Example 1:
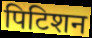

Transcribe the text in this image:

पिटिशन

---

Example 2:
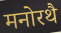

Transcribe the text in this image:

मनोरथै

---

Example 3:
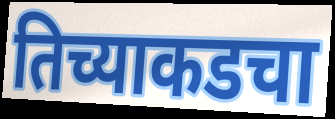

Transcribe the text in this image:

तिच्याकडचा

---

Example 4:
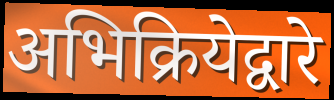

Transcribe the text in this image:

अभिक्रियेद्वारे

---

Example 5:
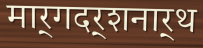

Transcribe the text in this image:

मार्गदर्शनार्थ